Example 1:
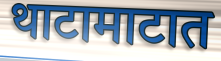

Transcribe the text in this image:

थाटामाटात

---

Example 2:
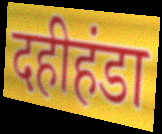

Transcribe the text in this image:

दहीहंडा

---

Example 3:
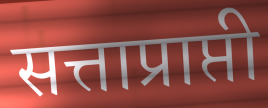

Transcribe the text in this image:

सत्ताप्राप्ती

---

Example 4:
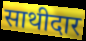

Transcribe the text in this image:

साथीदार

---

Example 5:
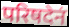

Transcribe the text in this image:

परिषदेनं